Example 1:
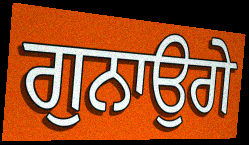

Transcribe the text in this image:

ਗੁਨਾਉਗੇ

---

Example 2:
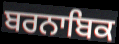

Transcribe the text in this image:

ਬਰਨਾਬਿਕ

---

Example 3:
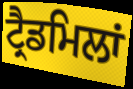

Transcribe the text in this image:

ਟ੍ਰੈਡਮਿਲਾਂ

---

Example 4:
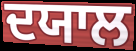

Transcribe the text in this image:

ਦਯਾਲ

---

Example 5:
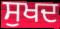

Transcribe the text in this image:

ਸੁਖਦ